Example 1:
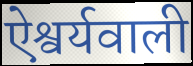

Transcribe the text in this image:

ऐश्वर्यवाली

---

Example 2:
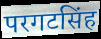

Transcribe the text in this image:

परगटसिंह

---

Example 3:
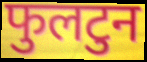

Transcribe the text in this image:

फुलटुन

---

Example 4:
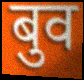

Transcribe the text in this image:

बुव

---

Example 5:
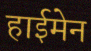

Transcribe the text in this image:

हाईमेन